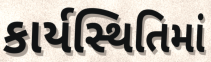
કાર્યસ્થિતિમાં